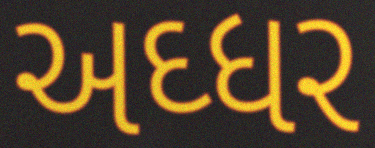
અઘ્ધર